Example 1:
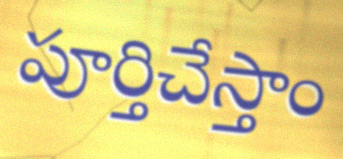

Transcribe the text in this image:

పూర్తిచేస్తాం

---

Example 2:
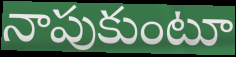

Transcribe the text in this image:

నాపుకుంటూ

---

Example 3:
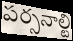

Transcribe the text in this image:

పర్సనాల్టి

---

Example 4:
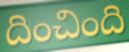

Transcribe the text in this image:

దించింది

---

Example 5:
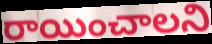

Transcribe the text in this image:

రాయించాలని